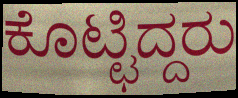
ಕೊಟ್ಟಿದ್ದರು